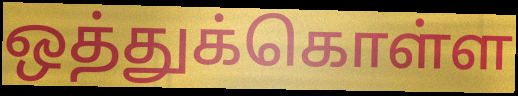
ஒத்துக்கொள்ள